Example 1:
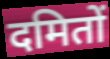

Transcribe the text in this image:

दमितों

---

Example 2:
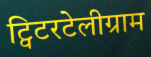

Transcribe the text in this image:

ट्विटरटेलीग्राम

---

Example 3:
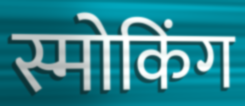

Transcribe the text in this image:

स्मोकिंग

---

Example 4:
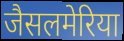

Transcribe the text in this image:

जैसलमेरिया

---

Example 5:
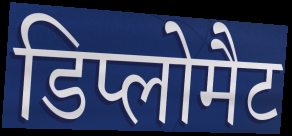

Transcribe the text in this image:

डिप्लोमैट